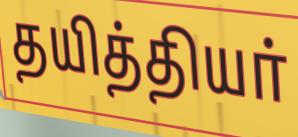
தயித்தியர்